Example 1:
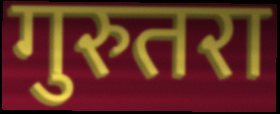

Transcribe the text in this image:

गुरुतरा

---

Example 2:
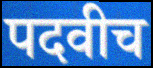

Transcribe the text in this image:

पदवीच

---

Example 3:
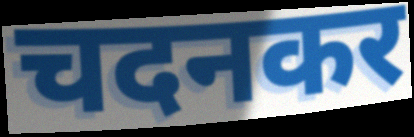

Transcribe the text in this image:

चदनकर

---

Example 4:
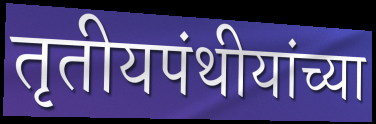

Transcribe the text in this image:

तृतीयपंथीयांच्या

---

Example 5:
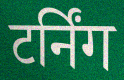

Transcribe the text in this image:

टर्निंग